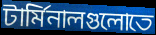
টার্মিনালগুলোতে